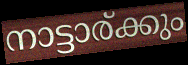
നാട്ടാര്ക്കും